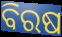
ବିରଷ